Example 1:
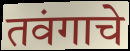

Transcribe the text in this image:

तवंगाचे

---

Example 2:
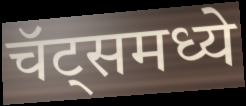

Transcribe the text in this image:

चॅट्समध्ये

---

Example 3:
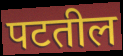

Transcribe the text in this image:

पटतील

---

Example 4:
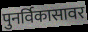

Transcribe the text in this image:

पुनर्विकासावर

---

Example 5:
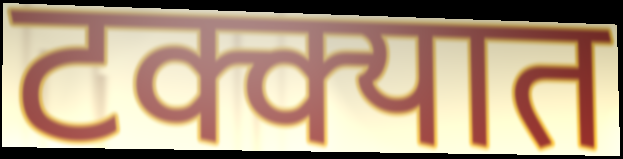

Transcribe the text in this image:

टक्क्यात